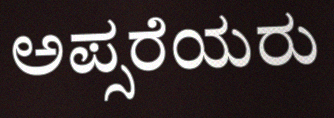
ಅಪ್ಸರೆಯರು